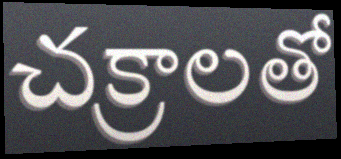
చక్రాలతో